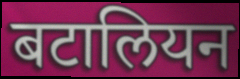
बटालियन